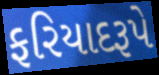
ફરિયાદરૂપે